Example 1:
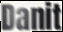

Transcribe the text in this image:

Danit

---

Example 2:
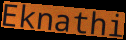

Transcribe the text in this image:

Eknathi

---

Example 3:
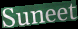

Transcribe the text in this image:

Suneet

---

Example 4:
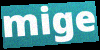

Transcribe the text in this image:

mige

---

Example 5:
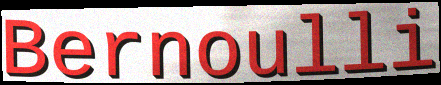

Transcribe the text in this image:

Bernoulli